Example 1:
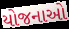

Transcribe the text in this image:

યોજનાઓ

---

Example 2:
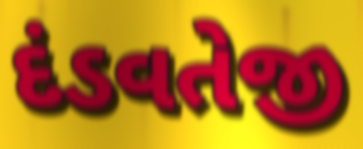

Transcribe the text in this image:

દંડવતેજી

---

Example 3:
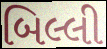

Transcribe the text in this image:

બિલ્લી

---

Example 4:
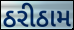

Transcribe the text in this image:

ઠરીઠામ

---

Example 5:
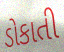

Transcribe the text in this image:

ડોકાતી